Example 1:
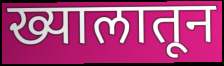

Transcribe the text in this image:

ख्यालातून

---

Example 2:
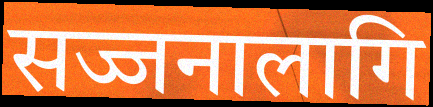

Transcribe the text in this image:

सज्जनालागि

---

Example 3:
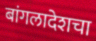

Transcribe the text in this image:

बांगलादेशचा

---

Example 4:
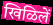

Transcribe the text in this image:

खिळिलें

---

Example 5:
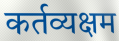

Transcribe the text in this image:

कर्तव्यक्षम